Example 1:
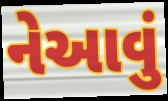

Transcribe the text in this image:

નેઆવું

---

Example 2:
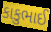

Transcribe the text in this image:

કાકુભાઈ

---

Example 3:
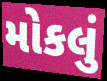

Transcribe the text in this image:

મોકલું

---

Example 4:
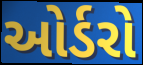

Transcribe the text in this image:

ઓર્ડરો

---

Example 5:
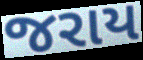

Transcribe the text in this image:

જરાય